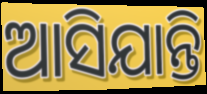
ଆସିଯାନ୍ତି